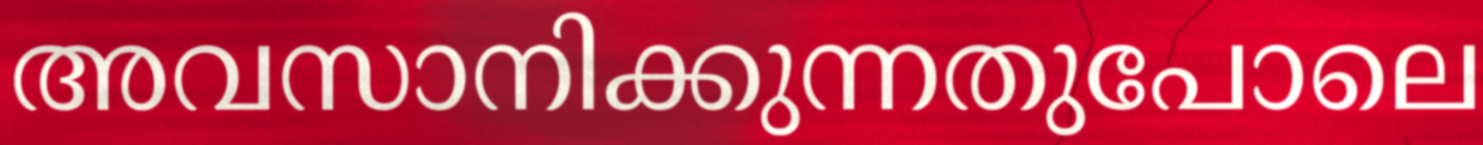
അവസാനിക്കുന്നതുപോലെ